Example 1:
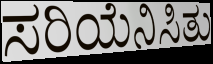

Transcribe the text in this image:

ಸರಿಯೆನಿಸಿತು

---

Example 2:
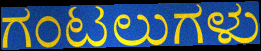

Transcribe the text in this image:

ಗಂಟಲುಗಳು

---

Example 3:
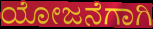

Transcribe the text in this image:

ಯೋಜನೆಗಾಗಿ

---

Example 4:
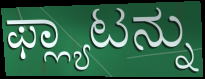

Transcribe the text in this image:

ಫ್ಲ್ಯಾಟನ್ನು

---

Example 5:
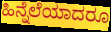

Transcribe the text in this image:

ಹಿನ್ನೆಲೆಯಾದರೂ